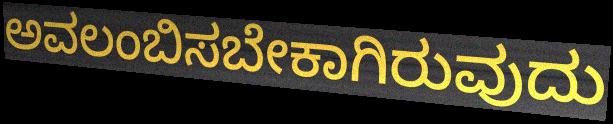
ಅವಲಂಬಿಸಬೇಕಾಗಿರುವುದು